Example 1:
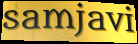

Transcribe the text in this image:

samjavi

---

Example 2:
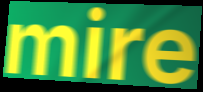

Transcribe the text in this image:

mire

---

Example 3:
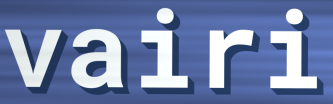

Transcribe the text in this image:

vairi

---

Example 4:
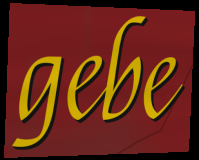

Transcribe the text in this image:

gebe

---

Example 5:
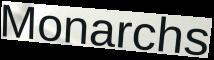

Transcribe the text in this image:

Monarchs